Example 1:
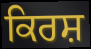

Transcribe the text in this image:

ਕਿਰਸ਼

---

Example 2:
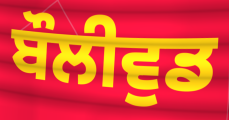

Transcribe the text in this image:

ਬੌਲੀਵੁਡ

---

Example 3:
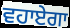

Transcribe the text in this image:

ਵਹਾਏਗਾ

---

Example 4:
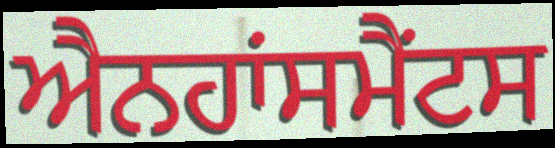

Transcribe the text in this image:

ਐਨਹਾਂਸਮੈਂਟਸ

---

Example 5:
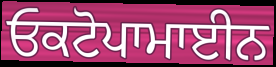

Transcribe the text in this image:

ਓਕਟੋਪਾਮਾਈਨ